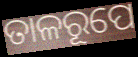
ତାଳରୂପେ